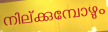
നില്ക്കുമ്പോഴും